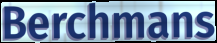
Berchmans